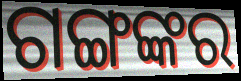
ଗଙ୍ଗଙ୍କର